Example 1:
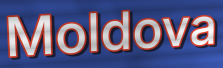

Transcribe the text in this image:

Moldova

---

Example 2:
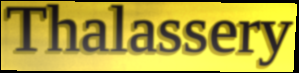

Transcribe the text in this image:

Thalassery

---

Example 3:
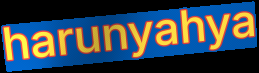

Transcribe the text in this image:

harunyahya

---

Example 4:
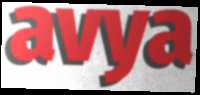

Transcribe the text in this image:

avya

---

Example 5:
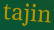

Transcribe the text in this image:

tajin